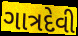
ગાત્રદેવી